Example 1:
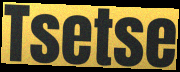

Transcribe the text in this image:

Tsetse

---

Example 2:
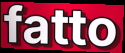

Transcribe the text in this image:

fatto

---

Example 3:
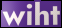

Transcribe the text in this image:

wiht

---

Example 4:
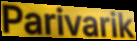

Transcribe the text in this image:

Parivarik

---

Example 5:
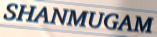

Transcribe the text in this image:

SHANMUGAM